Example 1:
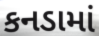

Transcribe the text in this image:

કનડામાં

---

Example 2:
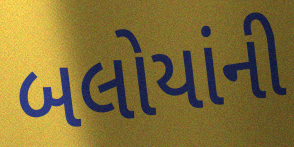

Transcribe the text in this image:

બલોયાંની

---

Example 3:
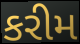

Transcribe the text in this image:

કરીમ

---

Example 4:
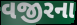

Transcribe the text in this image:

વજીરના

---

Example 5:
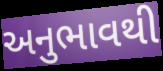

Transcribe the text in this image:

અનુભાવથી